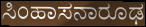
ಸಿಂಹಾಸನಾರೂಢ